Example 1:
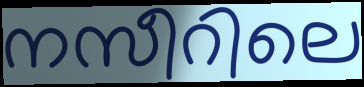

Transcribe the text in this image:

നസീറിലെ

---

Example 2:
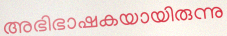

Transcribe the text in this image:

അഭിഭാഷകയായിരുന്നു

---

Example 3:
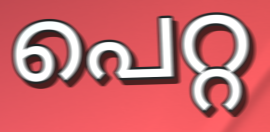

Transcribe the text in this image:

പെറ്റ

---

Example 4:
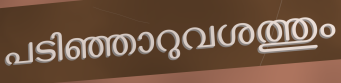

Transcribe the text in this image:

പടിഞ്ഞാറുവശത്തും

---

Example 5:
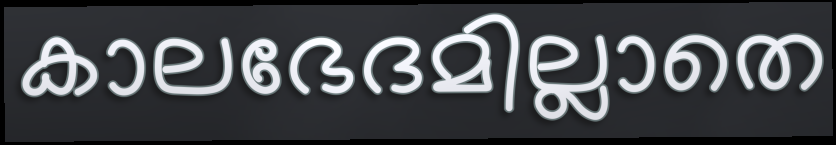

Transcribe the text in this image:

കാലഭേദമില്ലാതെ